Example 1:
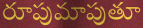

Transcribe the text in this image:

రూపుమాపుతూ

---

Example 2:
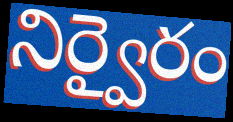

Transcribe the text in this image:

నిర్వైరం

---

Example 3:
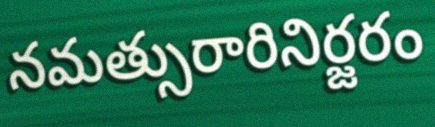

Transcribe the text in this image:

నమత్సురారినిర్జరం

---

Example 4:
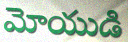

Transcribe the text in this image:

మోయుడి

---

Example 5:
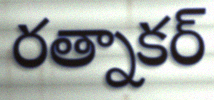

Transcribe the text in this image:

రత్నాకర్